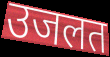
उजलत